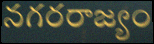
నగరరాజ్యం